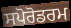
ਸਪੋਰੋਡਰਮ